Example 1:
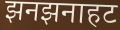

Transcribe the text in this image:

झनझनाहट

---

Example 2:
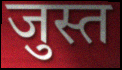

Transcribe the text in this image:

जुस्त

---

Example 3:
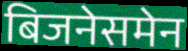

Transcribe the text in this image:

बिजनेसमेन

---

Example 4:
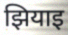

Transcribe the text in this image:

झियाइ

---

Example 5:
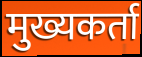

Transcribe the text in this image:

मुख्यकर्ता